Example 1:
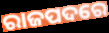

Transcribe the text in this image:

ରାଜପଦରେ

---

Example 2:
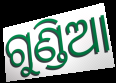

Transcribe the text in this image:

ଗୁଣ୍ଡିଆ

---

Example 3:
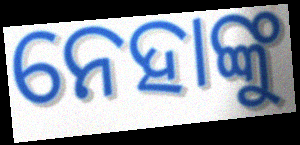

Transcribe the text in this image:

ନେହାଙ୍କୁ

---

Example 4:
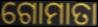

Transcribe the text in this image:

ଗୋମାତା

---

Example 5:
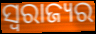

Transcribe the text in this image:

ସ୍ୱରାଜ୍ୟର